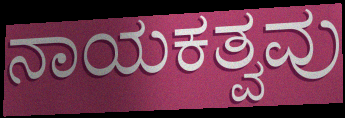
ನಾಯಕತ್ವವು